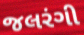
જલરંગી